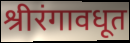
श्रीरंगावधूत